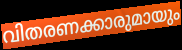
വിതരണക്കാരുമായും